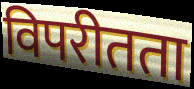
विपरीतता